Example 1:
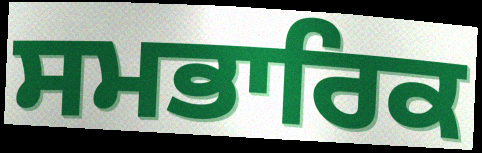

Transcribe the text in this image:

ਸਮਭਾਰਿਕ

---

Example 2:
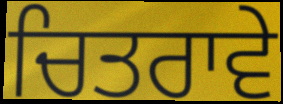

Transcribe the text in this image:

ਚਿਤਰਾਵੇ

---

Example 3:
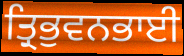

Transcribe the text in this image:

ਤ੍ਰਿਭੁਵਨਭਾਈ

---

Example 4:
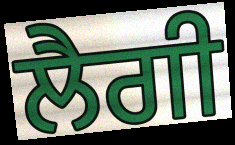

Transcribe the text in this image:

ਲੈਗੀ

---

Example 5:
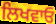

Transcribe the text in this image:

ਲਿਖਵਾਓ